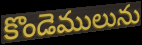
కొండెములును